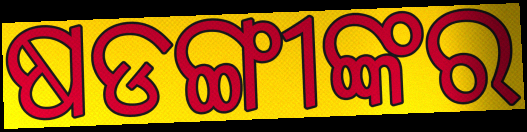
ଷଡଙ୍ଗୀଙ୍କର